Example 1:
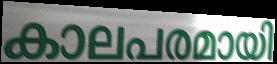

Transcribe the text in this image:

കാലപരമായി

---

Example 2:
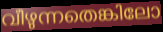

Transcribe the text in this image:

വീഴുന്നതെങ്കിലോ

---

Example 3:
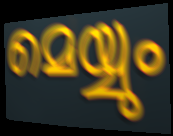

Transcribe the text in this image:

മെയ്യും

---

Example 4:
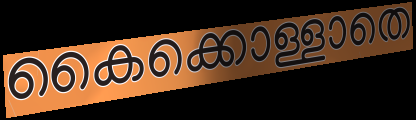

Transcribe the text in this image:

കൈക്കൊള്ളാതെ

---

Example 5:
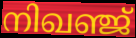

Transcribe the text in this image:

നിഖഞ്ജ്